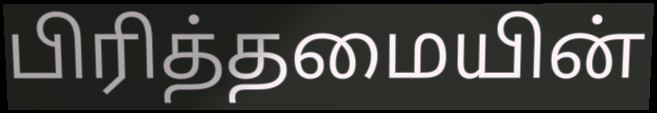
பிரித்தமையின்